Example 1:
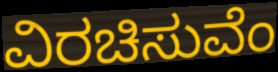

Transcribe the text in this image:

ವಿರಚಿಸುವೆಂ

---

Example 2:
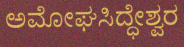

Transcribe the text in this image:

ಅಮೋಘಸಿದ್ಧೇಶ್ವರ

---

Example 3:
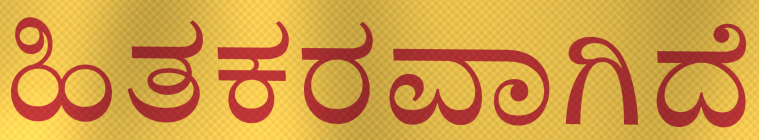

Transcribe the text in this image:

ಹಿತಕರವಾಗಿದೆ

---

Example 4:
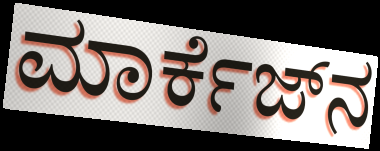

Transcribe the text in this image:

ಮಾರ್ಕೆಜ್‌ನ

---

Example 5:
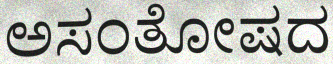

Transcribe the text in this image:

ಅಸಂತೋಷದ